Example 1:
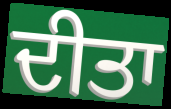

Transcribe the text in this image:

ਦੀਤਾ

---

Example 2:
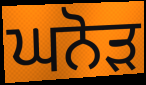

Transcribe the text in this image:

ਘਨੋੜ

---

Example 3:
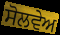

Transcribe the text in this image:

ਸੋਲਵੇਅ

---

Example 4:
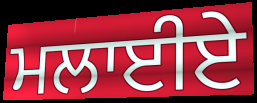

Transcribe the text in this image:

ਮਲਾਈਏ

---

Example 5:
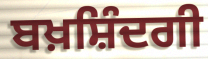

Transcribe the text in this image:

ਬਖ਼ਸ਼ਿੰਦਗੀ